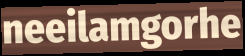
neeilamgorhe